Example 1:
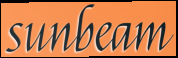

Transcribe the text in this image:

sunbeam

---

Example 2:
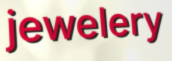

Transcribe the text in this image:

jewelery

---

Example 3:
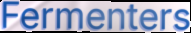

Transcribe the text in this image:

Fermenters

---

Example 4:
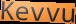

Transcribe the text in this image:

Kevvu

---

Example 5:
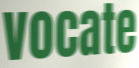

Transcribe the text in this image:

vocate